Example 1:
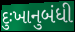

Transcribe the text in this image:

દુઃખાનુબંધી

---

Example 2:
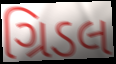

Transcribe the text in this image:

ગ્રિડલ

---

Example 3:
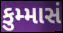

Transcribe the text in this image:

કુમ્માસં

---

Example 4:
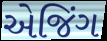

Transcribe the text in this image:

એજિંગ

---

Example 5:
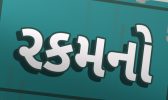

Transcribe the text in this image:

રકમનો